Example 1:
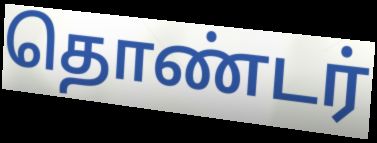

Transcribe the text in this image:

தொண்டர்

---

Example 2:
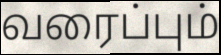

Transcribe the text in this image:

வரைப்பும்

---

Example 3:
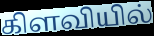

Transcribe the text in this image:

கிளவியில்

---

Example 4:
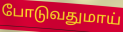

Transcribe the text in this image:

போடுவதுமாய்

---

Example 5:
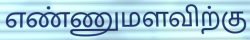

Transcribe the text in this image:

எண்ணுமளவிற்கு